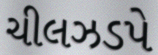
ચીલઝડપે